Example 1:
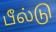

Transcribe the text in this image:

பீல்டு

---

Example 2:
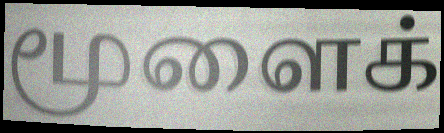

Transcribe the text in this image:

மூளைக்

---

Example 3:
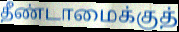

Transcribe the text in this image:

தீண்டாமைக்குத்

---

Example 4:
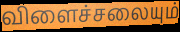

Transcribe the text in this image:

விளைச்சலையும்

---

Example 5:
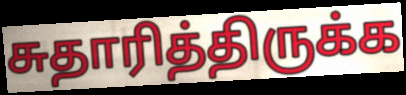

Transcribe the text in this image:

சுதாரித்திருக்க